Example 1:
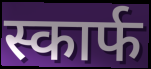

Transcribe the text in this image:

स्कार्फ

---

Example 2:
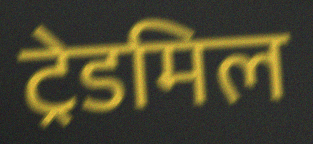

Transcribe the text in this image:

ट्रेडमिल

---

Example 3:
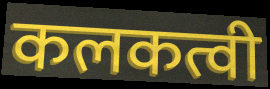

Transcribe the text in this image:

कलकत्वी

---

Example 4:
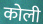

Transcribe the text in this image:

कोली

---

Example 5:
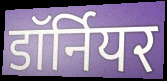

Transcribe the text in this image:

डॉर्नियर